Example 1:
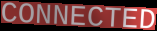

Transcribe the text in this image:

CONNECTED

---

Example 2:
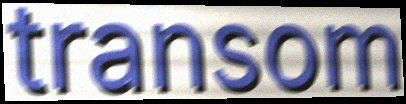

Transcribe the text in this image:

transom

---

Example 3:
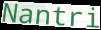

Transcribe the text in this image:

Nantri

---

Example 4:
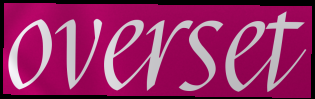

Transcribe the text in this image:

overset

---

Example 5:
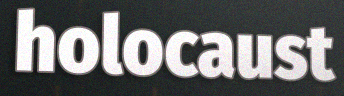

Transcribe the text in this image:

holocaust